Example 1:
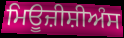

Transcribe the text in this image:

ਮਿਊਜ਼ੀਸ਼ੀਅੰਸ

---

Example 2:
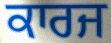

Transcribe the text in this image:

ਕਾਰਜ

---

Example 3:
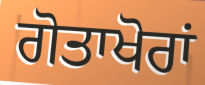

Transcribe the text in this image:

ਗੋਤਾਖੋਰਾਂ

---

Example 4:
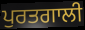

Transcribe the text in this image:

ਪੁਰਤਗਾਲੀ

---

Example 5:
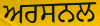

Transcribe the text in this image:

ਅਰਸਨਲ